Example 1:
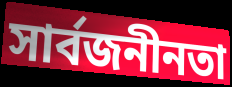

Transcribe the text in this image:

সাৰ্বজনীনতা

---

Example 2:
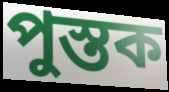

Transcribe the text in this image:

পুস্তক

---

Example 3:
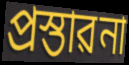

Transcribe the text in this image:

প্ৰস্তাৱনা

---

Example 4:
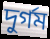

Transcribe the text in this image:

দুৰ্গম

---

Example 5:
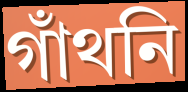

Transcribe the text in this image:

গাঁথনি